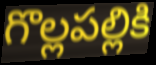
గొల్లపల్లికి